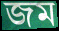
জম